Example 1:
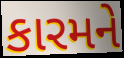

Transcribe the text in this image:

કારમને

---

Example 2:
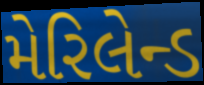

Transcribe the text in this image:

મેરિલેન્ડ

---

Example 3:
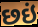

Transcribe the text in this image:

છઇં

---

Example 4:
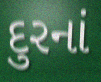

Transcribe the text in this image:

દુરનાં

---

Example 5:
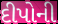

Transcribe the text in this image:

દીપોની